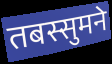
तबस्सुमने